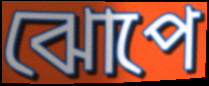
ঝোপে